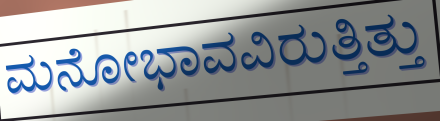
ಮನೋಭಾವವಿರುತ್ತಿತ್ತು